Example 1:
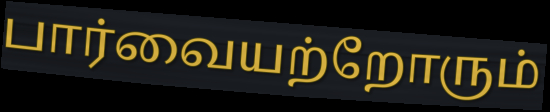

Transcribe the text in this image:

பார்வையற்றோரும்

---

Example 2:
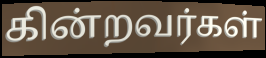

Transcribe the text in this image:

கின்றவர்கள்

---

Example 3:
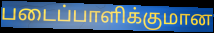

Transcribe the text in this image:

படைப்பாளிக்குமான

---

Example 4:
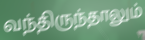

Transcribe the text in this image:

வந்திருந்தாலும்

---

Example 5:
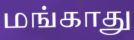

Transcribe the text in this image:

மங்காது